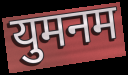
युमनम